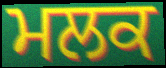
ਮਲਕ